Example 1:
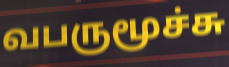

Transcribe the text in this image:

வபருமூச்சு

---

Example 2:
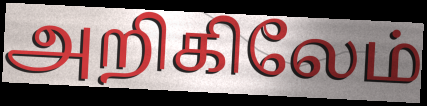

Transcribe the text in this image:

அறிகிலேம்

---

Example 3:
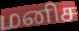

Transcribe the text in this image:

மனிச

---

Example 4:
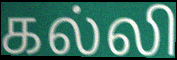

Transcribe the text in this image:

கல்லி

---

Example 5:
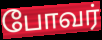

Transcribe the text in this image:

போவர்